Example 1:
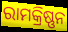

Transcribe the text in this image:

ରାମକ୍ରିଷ୍ଣନ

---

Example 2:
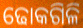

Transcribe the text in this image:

ଢୋକଗିଳି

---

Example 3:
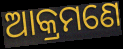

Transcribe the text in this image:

ଆକ୍ରମଣେ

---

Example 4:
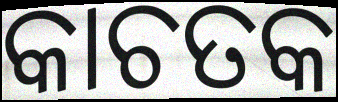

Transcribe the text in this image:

କାଚତକ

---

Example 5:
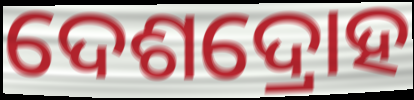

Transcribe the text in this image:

ଦେଶଦ୍ରୋହ